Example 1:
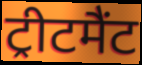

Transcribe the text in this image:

ट्रीटमैंट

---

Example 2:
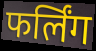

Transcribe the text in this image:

फर्लिंग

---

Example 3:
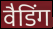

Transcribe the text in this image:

वैडिंग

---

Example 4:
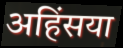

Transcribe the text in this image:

अहिंसया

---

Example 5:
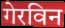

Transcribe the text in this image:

गेरविन